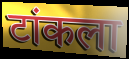
टांकला